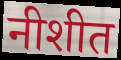
नीशीत